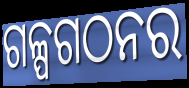
ଗଳ୍ପଗଠନର